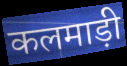
कलमाड़ी